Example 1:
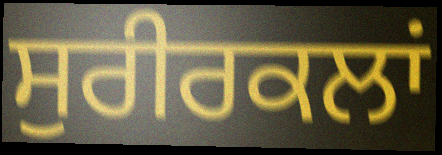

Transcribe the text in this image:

ਸੁਰੀਰਕਲਾਂ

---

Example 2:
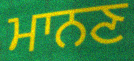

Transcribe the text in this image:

ਮਾਨਣ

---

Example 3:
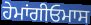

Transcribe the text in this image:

ਹੇਮਾਂਗੀਓਮਾਸ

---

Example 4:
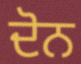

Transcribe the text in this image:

ਦੋਨ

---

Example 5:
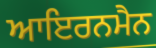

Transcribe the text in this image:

ਆਇਰਨਮੈਨ